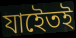
যাইেতই